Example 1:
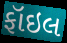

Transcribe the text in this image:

ફૉઇલ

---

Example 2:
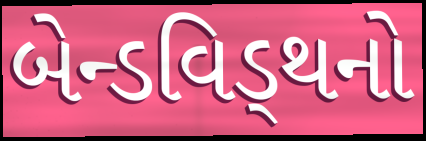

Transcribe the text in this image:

બેન્ડવિડ્થનો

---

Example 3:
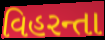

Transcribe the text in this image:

વિહરન્તા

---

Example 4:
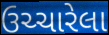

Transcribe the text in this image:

ઉચ્ચારેલા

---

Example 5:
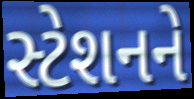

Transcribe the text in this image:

સ્ટેશનને